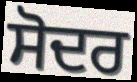
ਸੋਦਰ